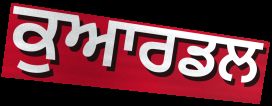
ਕੁਆਰਡਲ